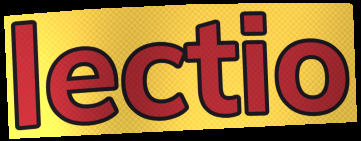
lectio